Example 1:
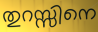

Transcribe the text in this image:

തുറസ്സിനെ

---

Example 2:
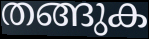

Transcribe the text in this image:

തങ്ങുക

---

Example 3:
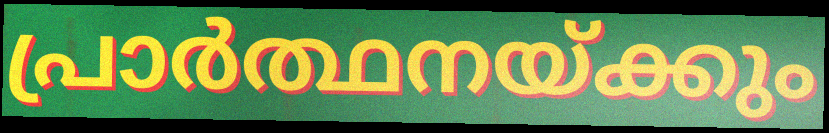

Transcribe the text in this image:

പ്രാർത്ഥനയ്ക്കും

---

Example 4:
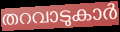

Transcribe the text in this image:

തറവാടുകാർ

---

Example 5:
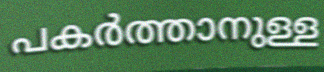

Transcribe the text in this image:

പകർത്താനുള്ള